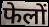
फेलों